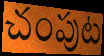
చంపుట